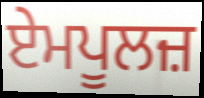
ਏਮਪੂਲਜ਼